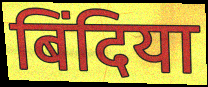
बिंदिया